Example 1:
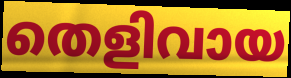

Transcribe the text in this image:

തെളിവായ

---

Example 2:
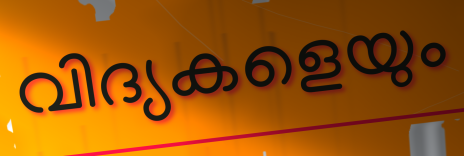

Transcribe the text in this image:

വിദ്യകളെയും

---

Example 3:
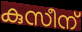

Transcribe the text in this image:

കുസീന്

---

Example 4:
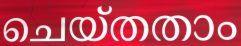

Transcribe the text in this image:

ചെയ്തതാം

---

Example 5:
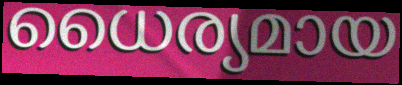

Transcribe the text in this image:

ധൈര്യമായ